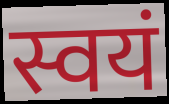
स्‍वयं